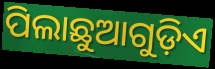
ପିଲାଛୁଆଗୁଡ଼ିଏ